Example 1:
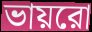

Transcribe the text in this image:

ভায়রো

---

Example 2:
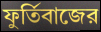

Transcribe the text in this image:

ফুর্তিবাজের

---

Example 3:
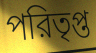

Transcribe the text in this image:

পরিতৃপ্ত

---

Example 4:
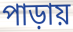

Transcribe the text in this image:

পাড়ায়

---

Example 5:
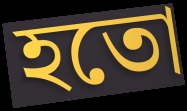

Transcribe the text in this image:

হতো